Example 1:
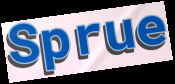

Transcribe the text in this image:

Sprue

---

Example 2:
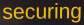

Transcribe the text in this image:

securing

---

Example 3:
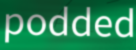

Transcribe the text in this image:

podded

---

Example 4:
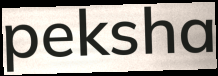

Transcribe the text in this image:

peksha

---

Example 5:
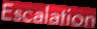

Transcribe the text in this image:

Escalation